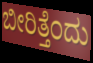
ಬೀರಿತ್ತೆಂದು